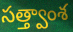
సత్త్వాంశ